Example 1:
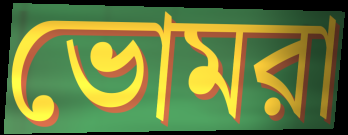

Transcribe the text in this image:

ভোমরা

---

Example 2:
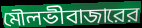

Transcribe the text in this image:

মৌলভীবাজারের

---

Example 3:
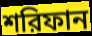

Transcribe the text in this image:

শরিফান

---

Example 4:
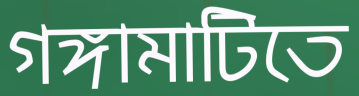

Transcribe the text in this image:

গঙ্গামাটিতে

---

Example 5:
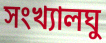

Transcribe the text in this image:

সংখ্যালঘু